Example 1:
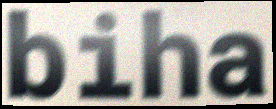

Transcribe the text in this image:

biha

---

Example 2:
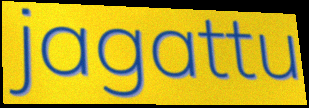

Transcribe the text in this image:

jagattu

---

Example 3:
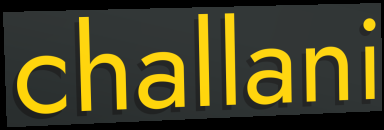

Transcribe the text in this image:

challani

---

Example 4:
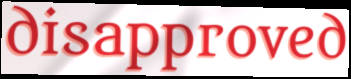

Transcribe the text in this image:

disapproved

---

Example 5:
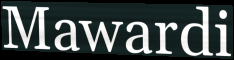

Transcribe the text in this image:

Mawardi